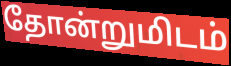
தோன்றுமிடம்